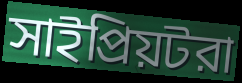
সাইপ্রিয়টরা